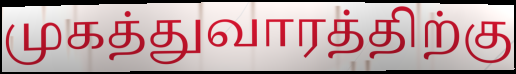
முகத்துவாரத்திற்கு